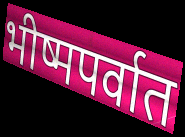
भीष्मपर्वात